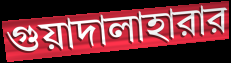
গুয়াদালাহারার